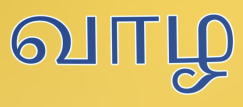
வாழ